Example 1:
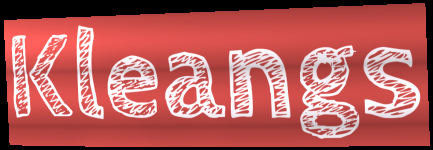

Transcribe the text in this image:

Kleangs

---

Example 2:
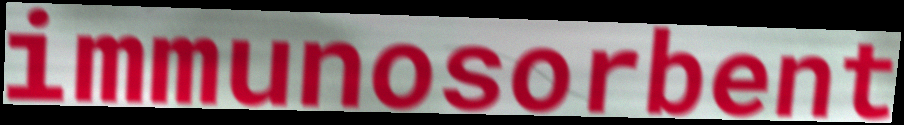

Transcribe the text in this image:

immunosorbent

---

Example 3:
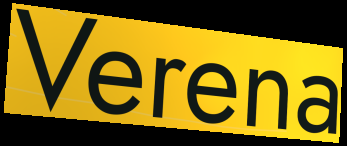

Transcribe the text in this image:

Verena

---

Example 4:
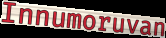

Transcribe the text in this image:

Innumoruvan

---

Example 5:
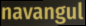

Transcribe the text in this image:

navangul